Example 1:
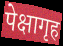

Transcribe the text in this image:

पेक्षागृह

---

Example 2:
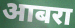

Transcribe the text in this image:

आबरा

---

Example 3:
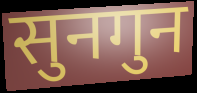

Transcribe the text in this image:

सुनगुन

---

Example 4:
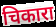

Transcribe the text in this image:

चिकारा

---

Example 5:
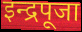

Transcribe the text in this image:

इन्द्रपूजा